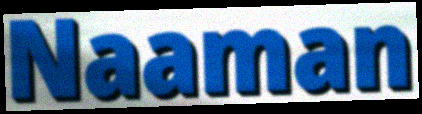
Naaman